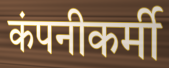
कंपनीकर्मी